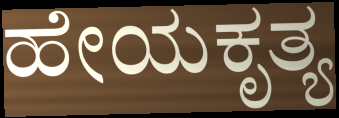
ಹೇಯಕೃತ್ಯ